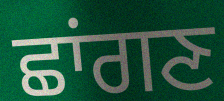
ਛਾਂਗਣ